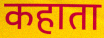
कहाता